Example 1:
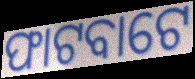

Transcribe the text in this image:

ଫାଟବାଟେ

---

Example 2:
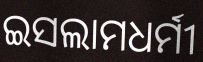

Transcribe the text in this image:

ଇସଲାମଧର୍ମୀ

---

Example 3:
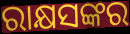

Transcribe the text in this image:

ରାକ୍ଷସଙ୍କର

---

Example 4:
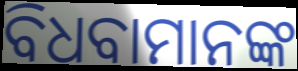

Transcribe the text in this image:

ବିଧବାମାନଙ୍କ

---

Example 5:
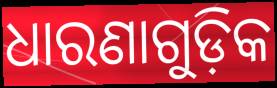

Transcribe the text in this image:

ଧାରଣାଗୁଡ଼ିକ